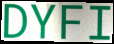
DYFI